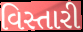
વિસ્તારી